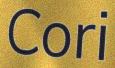
Cori